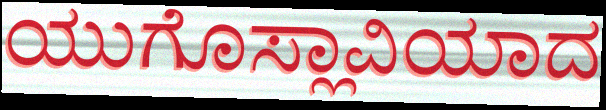
ಯುಗೊಸ್ಲಾವಿಯಾದ